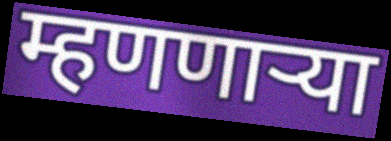
म्हणणार्‍या